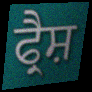
ਫ੍ਰੈਸ਼